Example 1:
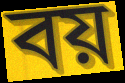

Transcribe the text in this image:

বয়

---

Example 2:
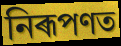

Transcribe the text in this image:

নিৰূপণত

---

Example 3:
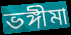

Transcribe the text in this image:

ভঙ্গীমা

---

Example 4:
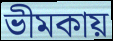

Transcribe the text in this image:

ভীমকায়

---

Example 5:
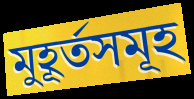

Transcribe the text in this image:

মুহূৰ্তসমূহ